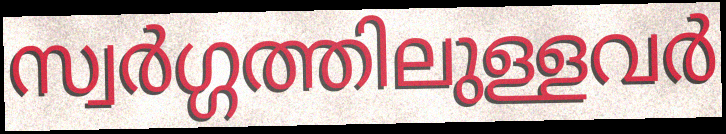
സ്വർഗ്ഗത്തിലുള്ളവർ